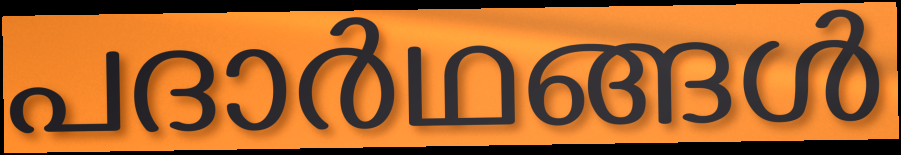
പദാർഥങ്ങൾ